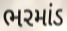
ભરમાંડ